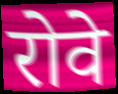
रोवे